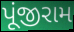
પૂંજીરામ